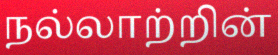
நல்லாற்றின்